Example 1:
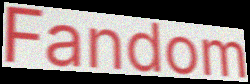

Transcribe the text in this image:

Fandom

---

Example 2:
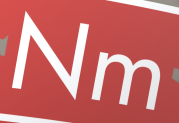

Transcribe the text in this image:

Nm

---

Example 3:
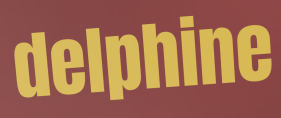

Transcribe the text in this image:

delphine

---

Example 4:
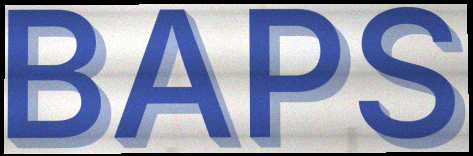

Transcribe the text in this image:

BAPS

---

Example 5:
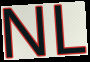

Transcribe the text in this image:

NL